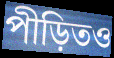
পীড়িতও